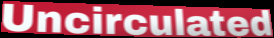
Uncirculated